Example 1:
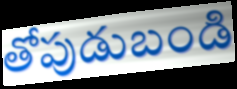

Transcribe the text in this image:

తోపుడుబండి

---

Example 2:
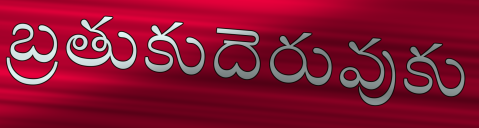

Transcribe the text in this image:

బ్రతుకుదెరువుకు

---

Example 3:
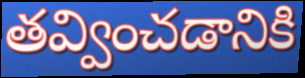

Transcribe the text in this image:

తవ్వించడానికి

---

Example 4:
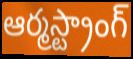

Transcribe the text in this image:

ఆర్మస్ట్రాంగ్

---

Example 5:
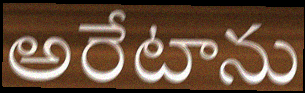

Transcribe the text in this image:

అరేటాను